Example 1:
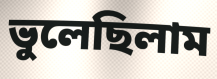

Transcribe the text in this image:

ভুলেছিলাম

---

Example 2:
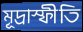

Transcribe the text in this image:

মূদ্রাস্ফীতি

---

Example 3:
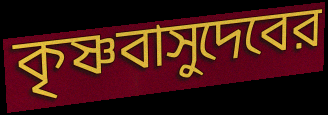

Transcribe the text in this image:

কৃষ্ণবাসুদেবের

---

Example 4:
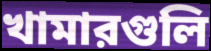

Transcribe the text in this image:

খামারগুলি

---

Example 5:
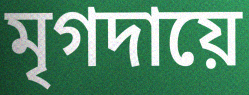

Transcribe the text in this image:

মৃগদায়ে